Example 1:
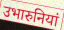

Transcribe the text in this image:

उभारुनियां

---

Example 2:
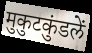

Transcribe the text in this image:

मुकुटकुंडलें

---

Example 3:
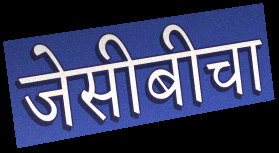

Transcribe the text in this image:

जेसीबीचा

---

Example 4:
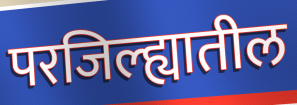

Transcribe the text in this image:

परजिल्ह्यातील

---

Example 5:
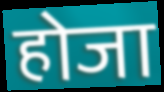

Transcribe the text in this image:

होजा